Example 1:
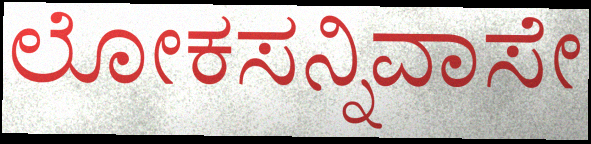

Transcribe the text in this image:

ಲೋಕಸನ್ನಿವಾಸೇ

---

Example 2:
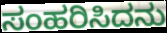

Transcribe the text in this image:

ಸಂಹರಿಸಿದನು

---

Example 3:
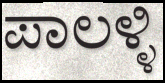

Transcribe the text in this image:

ಪಾಲಳ್ಳಿ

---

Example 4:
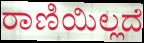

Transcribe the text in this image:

ರಾಣಿಯಿಲ್ಲದೆ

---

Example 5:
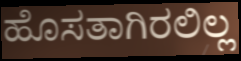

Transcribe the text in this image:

ಹೊಸತಾಗಿರಲಿಲ್ಲ